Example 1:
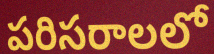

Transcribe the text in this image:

పరిసరాలలో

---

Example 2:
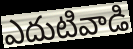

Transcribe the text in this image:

ఎదుటివాడి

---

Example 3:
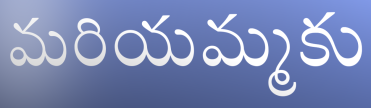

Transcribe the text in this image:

మరియమ్మకు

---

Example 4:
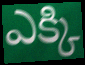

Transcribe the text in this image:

ఎక్కి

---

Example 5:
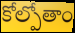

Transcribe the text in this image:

కోల్పోతాం